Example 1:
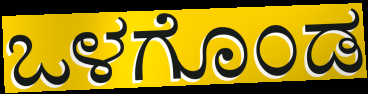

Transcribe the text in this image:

ಒಳಗೊಂಡ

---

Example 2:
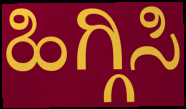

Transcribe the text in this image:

ಹಿಗ್ಗಿಸಿ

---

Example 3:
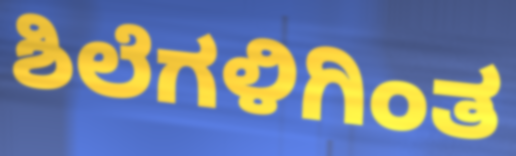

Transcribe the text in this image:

ಶಿಲೆಗಳಿಗಿಂತ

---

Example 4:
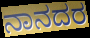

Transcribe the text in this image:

ನಾನದರ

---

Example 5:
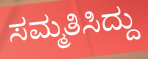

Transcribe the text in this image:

ಸಮ್ಮತಿಸಿದ್ದು